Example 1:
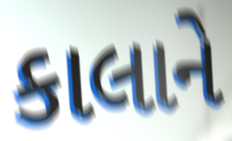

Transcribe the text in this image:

કાલાને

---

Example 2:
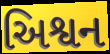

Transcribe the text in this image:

અિશ્વન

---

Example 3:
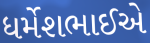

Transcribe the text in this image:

ધર્મેશભાઈએ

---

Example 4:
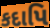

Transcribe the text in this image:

કદાપિ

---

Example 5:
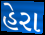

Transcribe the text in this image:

હેરા